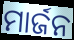
ମାର୍ଜନ